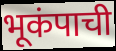
भूकंपाची